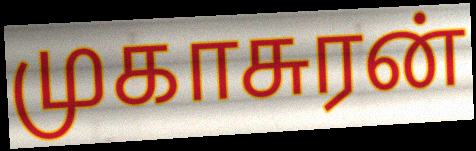
முகாசுரன்